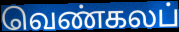
வெண்கலப்